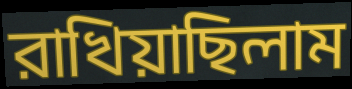
রাখিয়াছিলাম